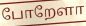
போறேளா